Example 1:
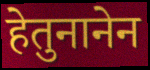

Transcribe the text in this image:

हेतुनानेन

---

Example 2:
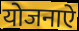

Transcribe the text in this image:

योजनाऐ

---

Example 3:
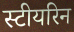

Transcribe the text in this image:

स्टीयरिन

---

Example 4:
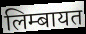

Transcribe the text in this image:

लिम्बायत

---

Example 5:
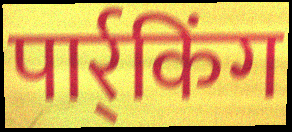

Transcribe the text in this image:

पार्र्किंग